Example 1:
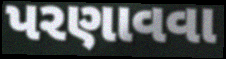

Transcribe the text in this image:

પરણાવવા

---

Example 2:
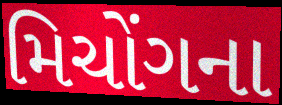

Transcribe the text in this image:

મિચોંગના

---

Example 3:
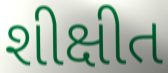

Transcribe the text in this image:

શીક્ષીત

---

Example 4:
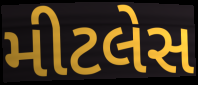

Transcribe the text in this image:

મીટલેસ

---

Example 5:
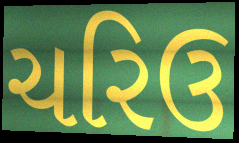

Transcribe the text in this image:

ચરિઉ